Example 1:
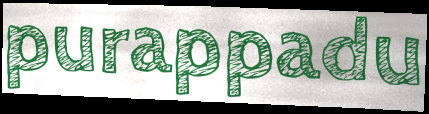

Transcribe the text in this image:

purappadu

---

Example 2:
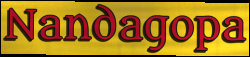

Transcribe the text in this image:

Nandagopa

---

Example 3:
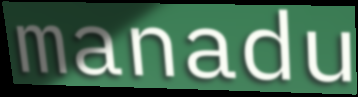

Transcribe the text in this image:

manadu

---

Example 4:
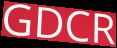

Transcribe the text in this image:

GDCR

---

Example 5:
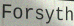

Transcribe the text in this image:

Forsyth